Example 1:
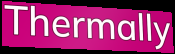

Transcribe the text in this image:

Thermally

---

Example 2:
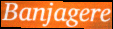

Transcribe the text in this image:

Banjagere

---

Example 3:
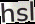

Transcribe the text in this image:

hsl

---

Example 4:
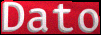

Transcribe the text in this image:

Dato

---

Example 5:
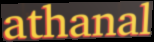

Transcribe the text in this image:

athanal